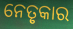
ନେତୃକାର